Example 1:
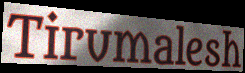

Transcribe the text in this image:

Tirumalesh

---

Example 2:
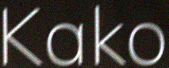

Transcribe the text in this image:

Kako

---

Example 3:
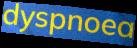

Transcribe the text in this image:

dyspnoea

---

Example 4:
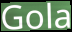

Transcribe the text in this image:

Gola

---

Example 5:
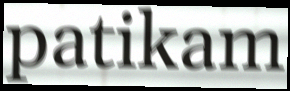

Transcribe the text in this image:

patikam